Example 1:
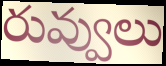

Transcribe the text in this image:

రువ్వులు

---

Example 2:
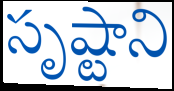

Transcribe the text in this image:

సృష్టాని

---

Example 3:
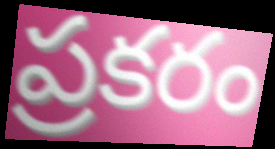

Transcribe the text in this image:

ప్రకరం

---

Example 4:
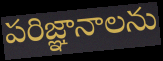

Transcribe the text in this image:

పరిజ్ఞానాలను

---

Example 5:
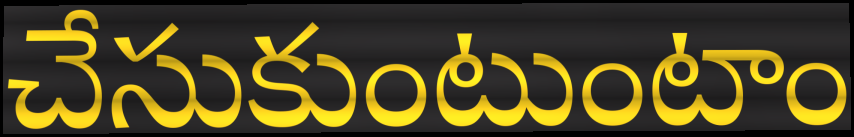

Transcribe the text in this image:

చేసుకుంటుంటాం